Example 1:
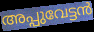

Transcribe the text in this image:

അപ്പുവേട്ടൻ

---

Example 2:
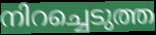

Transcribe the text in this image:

നിറച്ചെടുത്ത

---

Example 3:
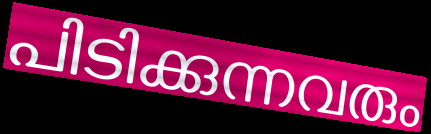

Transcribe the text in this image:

പിടിക്കുന്നവരും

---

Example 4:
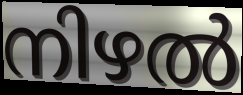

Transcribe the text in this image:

നിഴൽ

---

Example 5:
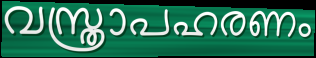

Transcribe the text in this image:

വസ്ത്രാപഹരണം